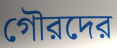
গৌরদের